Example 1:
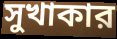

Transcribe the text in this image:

সুখাকার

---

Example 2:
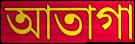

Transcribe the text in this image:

আতাগা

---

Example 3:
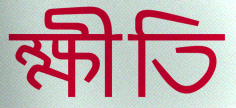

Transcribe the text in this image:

ক্ষীতি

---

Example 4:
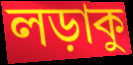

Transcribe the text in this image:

লড়াকু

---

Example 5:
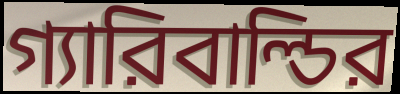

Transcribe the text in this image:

গ্যারিবাল্ডির